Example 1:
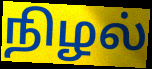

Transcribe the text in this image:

நிழல்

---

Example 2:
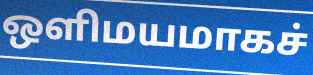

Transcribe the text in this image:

ஒளிமயமாகச்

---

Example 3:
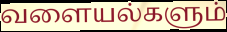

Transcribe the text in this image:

வளையல்களும்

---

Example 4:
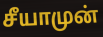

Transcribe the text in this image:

சீயாமுன்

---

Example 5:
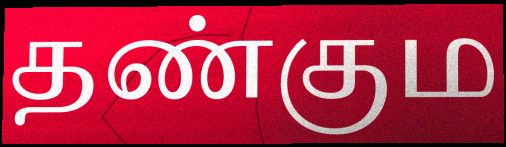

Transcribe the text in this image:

தண்கும